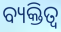
ବ୍ୟକ୍ତିତ୍ଵ